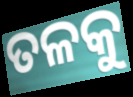
ତଳକୁ